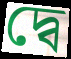
দ্বে